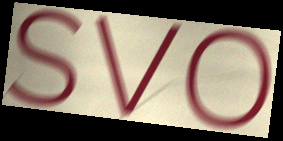
svo